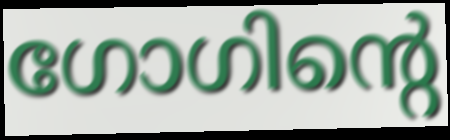
ഗോഗിന്റെ